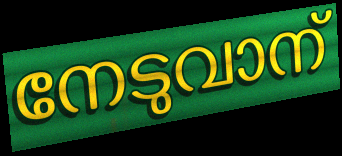
നേടുവാന്